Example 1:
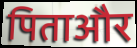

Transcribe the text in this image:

पिताऔर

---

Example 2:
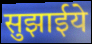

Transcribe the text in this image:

सुझाईये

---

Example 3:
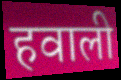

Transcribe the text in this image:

हवाली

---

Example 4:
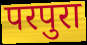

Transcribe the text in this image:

परपुरा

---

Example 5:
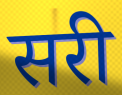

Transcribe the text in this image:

सरी